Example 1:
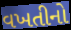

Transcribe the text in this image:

વખતીનો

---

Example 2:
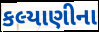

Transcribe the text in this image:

કલ્યાણીના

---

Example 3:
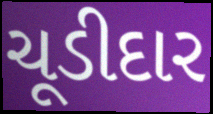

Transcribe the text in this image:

ચૂડીદાર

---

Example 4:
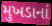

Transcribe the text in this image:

મુખડાનાં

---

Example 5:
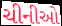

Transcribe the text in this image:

ચીનીઓ